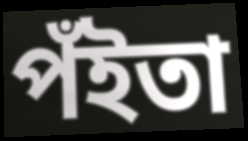
পঁইতা